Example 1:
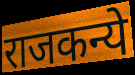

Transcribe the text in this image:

राजकन्ये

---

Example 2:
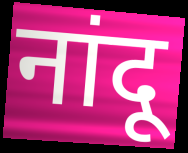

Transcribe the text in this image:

नांदू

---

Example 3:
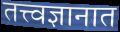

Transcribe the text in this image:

तत्त्वज्ञानात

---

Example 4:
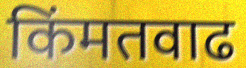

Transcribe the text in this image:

किंमतवाढ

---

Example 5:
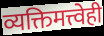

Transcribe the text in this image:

व्यक्तिमत्त्वेही